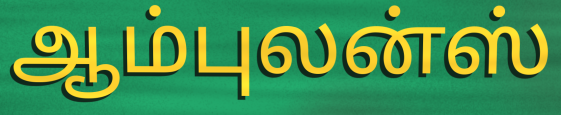
ஆம்புலன்ஸ்